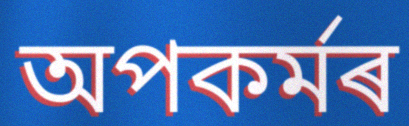
অপকৰ্মৰ